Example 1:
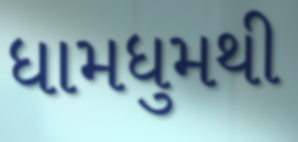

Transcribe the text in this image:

ધામધુમથી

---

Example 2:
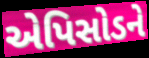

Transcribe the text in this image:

એપિસોડને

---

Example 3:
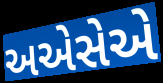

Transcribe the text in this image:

અએસેએ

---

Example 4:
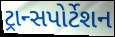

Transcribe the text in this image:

ટ્રાન્સપોર્ટેશન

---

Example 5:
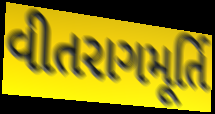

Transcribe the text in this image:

વીતરાગમૂર્તિ